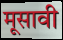
मूसावी